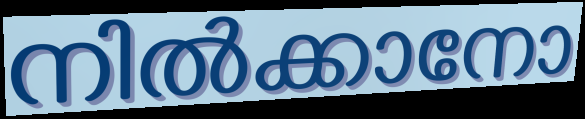
നിൽക്കാനോ